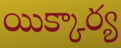
యిక్కార్య